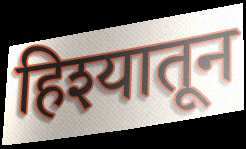
हिश्यातून